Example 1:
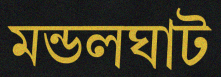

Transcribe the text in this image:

মন্ডলঘাট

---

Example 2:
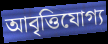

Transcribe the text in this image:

আবৃত্তিযোগ্য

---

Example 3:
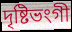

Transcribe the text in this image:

দৃষ্টিভংগী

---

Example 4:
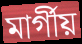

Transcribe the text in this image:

মার্গীয়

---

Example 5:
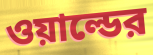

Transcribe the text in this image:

ওয়াল্ডের